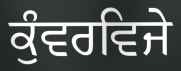
ਕੁੰਵਰਵਿਜੇ